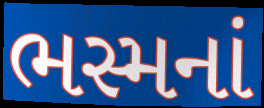
ભસ્મનાં